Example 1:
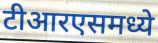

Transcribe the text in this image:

टीआरएसमध्ये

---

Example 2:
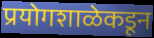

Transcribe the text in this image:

प्रयोगशाळेकडून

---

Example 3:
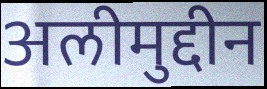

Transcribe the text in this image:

अलीमुद्दीन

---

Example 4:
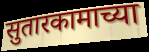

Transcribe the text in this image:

सुतारकामाच्या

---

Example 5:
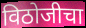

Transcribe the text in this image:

विठोजीचा